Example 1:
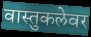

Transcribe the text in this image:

वास्तुकलेवर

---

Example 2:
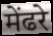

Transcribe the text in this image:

मेंढरे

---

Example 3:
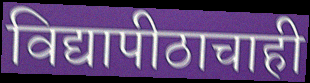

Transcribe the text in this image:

विद्यापीठाचाही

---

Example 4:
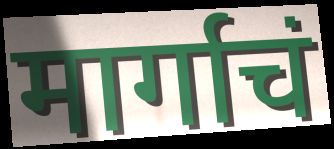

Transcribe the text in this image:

मार्गाचं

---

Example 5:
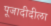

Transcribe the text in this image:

पूजादीदीला